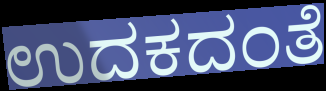
ಉದಕದಂತೆ